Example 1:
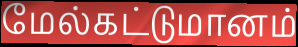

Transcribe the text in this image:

மேல்கட்டுமானம்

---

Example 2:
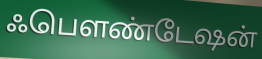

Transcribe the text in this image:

ஃபௌண்டேஷன்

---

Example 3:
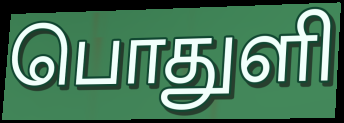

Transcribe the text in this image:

பொதுளி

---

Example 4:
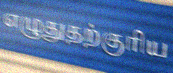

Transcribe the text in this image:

எழுதுதற்குரிய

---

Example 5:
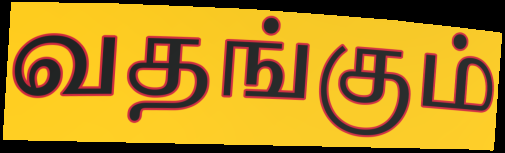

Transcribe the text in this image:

வதங்கும்